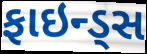
ફાઇન્ડ્સ